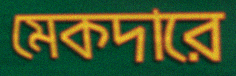
মেকদারে